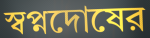
স্বপ্নদোষের